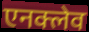
एनक्लेव